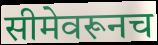
सीमेवरूनच